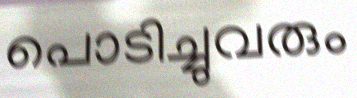
പൊടിച്ചുവരും